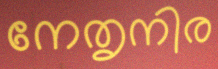
നേതൃനിര